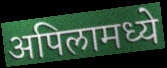
अपिलामध्ये